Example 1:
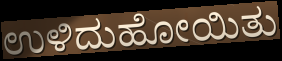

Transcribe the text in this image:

ಉಳಿದುಹೋಯಿತು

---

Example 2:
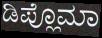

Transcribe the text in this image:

ಡಿಪ್ಲೊಮಾ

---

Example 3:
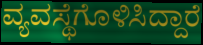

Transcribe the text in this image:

ವ್ಯವಸ್ಥೆಗೊಳಿಸಿದ್ದಾರೆ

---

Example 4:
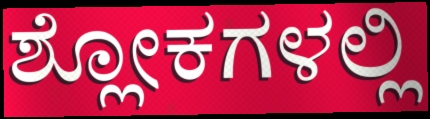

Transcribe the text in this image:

ಶ್ಲೋಕಗಳಲ್ಲಿ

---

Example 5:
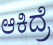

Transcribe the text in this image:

ಆಕಿದ್ರೆ